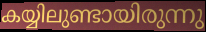
കയ്യിലുണ്ടായിരുന്നു